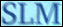
SLM